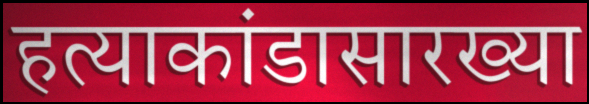
हत्याकांडासारख्या